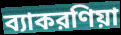
ব্যাকরণিয়া